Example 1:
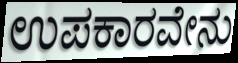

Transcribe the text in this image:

ಉಪಕಾರವೇನು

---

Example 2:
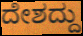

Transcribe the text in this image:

ದೇಶದ್ದು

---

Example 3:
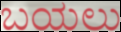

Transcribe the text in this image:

ಬಯಲು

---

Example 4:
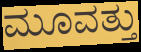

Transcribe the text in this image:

ಮೂವತ್ತು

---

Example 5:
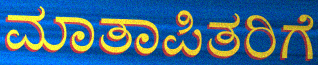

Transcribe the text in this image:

ಮಾತಾಪಿತರಿಗೆ